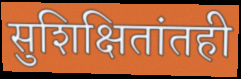
सुशिक्षितांतही